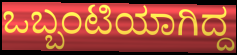
ಒಬ್ಬಂಟಿಯಾಗಿದ್ದ